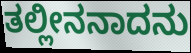
ತಲ್ಲೀನನಾದನು